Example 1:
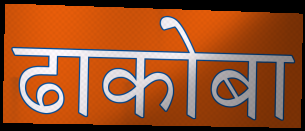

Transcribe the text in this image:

ढाकोबा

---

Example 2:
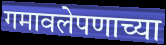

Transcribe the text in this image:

गमावलेपणाच्या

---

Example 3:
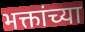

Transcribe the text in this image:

भक्तांच्या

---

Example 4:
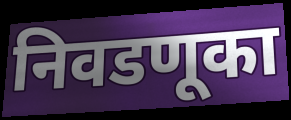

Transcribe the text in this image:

निवडणूका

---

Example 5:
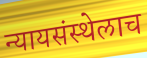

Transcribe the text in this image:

न्यायसंस्थेलाच